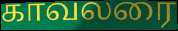
காவலரை